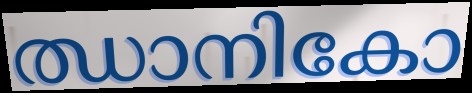
ഝാനികോ